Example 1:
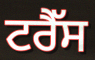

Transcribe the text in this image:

ਟਰੈੱਸ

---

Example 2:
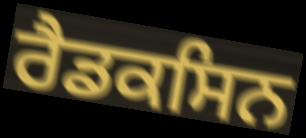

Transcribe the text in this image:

ਰੈਡਕਸਿਨ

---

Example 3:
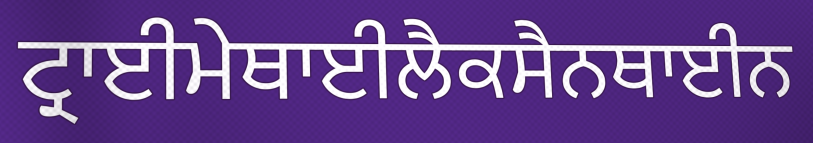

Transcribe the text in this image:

ਟ੍ਰਾਈਮੇਥਾਈਲੈਕਸੈਨਥਾਈਨ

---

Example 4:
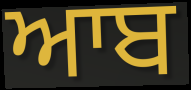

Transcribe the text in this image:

ਆਬ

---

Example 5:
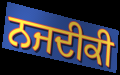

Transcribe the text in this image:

ਨਜਦੀਕੀ